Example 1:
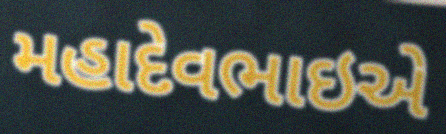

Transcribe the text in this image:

મહાદેવભાઇએ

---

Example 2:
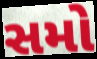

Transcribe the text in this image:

સમો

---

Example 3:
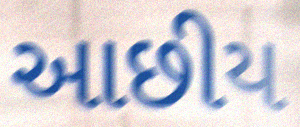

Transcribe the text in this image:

આછીય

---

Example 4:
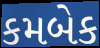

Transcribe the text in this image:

કમબેક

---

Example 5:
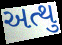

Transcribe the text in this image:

અત્થુ